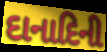
દાનાદિની